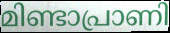
മിണ്ടാപ്രാണി